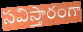
సవిస్తారంగా